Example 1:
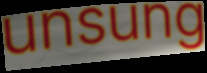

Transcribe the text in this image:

unsung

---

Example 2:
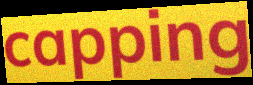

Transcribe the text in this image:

capping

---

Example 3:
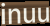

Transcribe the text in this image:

inuu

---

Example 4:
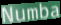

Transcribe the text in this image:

Numba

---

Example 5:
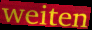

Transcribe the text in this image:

weiten